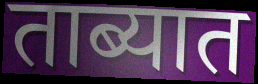
ताब्यात